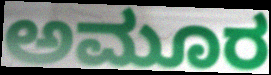
ಅಮೂರ